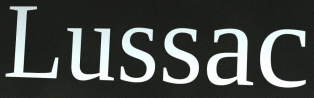
Lussac